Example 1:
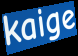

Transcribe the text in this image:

kaige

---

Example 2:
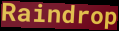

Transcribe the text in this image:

Raindrop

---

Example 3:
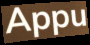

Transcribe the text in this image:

Appu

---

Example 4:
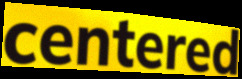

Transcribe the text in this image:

centered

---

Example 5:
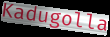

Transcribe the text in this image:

Kadugolla